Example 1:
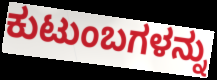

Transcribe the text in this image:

ಕುಟುಂಬಗಳನ್ನು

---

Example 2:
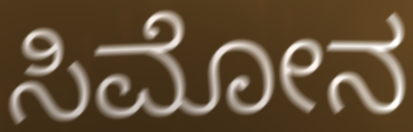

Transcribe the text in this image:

ಸಿಮೋನ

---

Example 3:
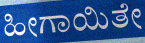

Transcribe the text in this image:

ಹೀಗಾಯಿತೇ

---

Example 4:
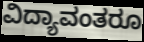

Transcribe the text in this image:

ವಿದ್ಯಾವಂತರೂ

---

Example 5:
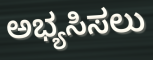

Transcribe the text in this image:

ಅಭ್ಯಸಿಸಲು